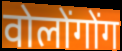
वोलोंगोंग